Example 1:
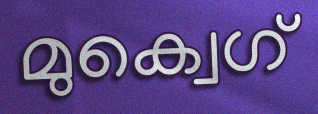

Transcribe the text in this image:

മുക്വെഗ്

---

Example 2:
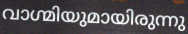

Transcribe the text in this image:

വാഗ്മിയുമായിരുന്നു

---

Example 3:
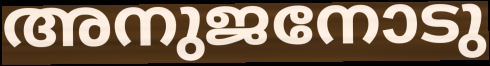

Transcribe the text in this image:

അനുജനോടു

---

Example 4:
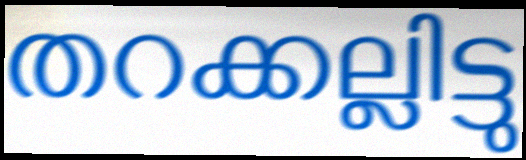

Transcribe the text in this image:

തറക്കല്ലിട്ടു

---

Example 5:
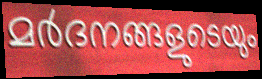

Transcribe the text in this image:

മർദനങ്ങളുടെയും